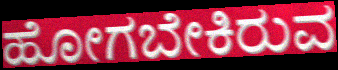
ಹೋಗಬೇಕಿರುವ